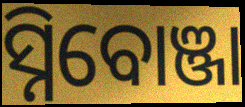
ସ୍ନିବୋଞ୍ଜା